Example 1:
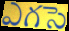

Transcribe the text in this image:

ఎగసె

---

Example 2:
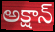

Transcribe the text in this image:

అక్షాన్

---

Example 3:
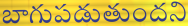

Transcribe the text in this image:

బాగుపడుతుందని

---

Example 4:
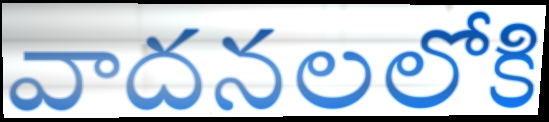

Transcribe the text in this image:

వాదనలలోకి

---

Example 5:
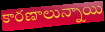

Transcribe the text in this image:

కారణాలున్నాయి